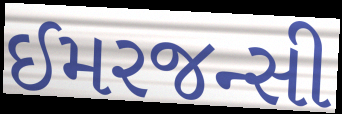
ઈમરજન્સી